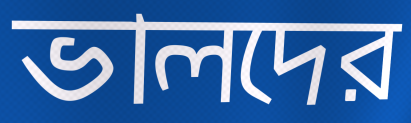
ভালদের